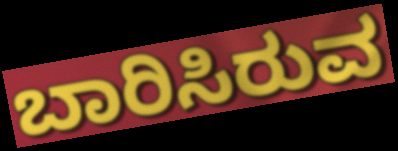
ಬಾರಿಸಿರುವ